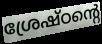
ശ്രേഷ്ഠന്റെ